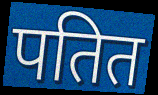
पतित